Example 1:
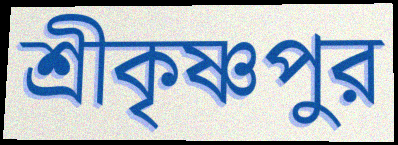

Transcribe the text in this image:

শ্রীকৃষ্ণপুর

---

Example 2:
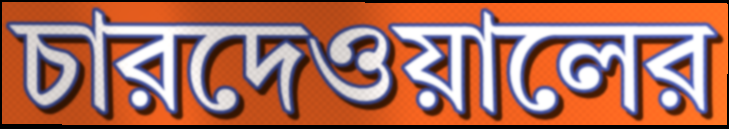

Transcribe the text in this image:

চারদেওয়ালের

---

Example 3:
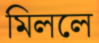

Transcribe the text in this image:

মিললে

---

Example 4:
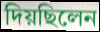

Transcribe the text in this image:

দিয়ছিলেন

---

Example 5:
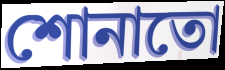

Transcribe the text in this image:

শোনাতো